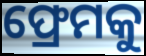
ଫ୍ରେମକୁ